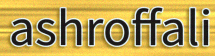
ashroffali